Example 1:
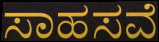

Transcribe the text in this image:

ಸಾಹಸವೆ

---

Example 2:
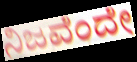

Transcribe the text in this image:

ನಿಜವೆಂದೇ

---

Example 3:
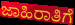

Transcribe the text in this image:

ಜಾಹಿರಾತಿಗೆ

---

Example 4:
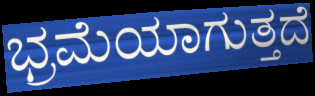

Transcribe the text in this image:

ಭ್ರಮೆಯಾಗುತ್ತದೆ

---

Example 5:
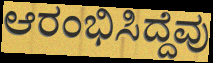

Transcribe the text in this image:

ಆರಂಭಿಸಿದ್ದೆವು